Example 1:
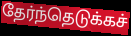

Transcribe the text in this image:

தேர்ந்தெடுக்கச்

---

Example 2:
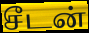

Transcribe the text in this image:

சீடன்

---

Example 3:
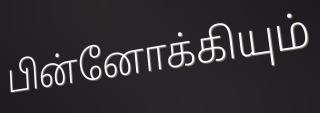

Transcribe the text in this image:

பின்னோக்கியும்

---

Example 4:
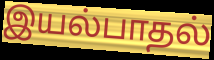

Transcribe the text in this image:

இயல்பாதல்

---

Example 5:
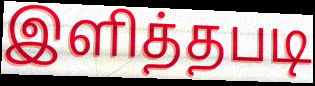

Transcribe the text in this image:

இளித்தபடி